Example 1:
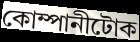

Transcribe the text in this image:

কোম্পানীটোক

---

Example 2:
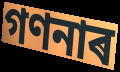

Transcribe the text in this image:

গণনাৰ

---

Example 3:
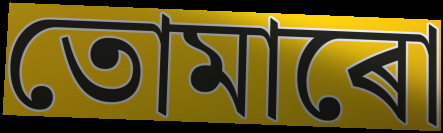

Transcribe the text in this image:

তোমাৰো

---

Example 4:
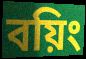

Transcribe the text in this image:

বয়িং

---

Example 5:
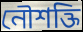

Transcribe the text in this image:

নৌশক্তি